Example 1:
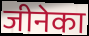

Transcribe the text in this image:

जीनेका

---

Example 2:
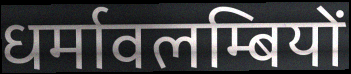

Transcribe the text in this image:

धर्मावलम्बियों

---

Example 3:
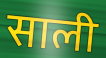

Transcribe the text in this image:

साली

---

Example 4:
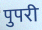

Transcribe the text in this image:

पुपरी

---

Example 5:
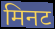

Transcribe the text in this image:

मिनट